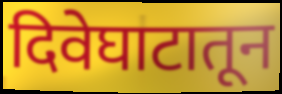
दिवेघाटातून